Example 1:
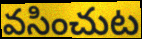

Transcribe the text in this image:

వసించుట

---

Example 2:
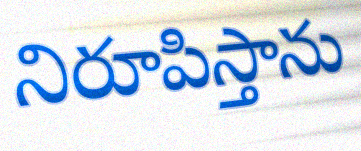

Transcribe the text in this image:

నిరూపిస్తాను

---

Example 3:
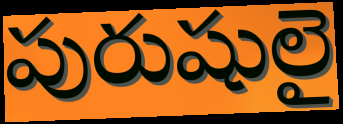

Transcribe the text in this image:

పురుషులై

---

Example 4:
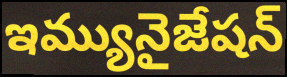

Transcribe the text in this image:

ఇమ్యునైజేషన్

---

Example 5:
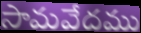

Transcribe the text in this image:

సామవేదము